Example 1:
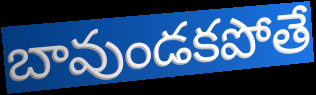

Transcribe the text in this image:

బావుండకపోతే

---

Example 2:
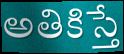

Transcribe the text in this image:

అతికిస్తే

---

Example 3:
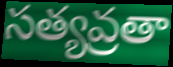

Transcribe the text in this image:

సత్యవ్రతా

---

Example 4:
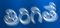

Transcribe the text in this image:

తిరిగితే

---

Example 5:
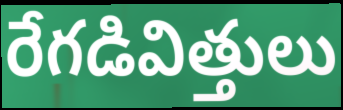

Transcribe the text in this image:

రేగడివిత్తులు